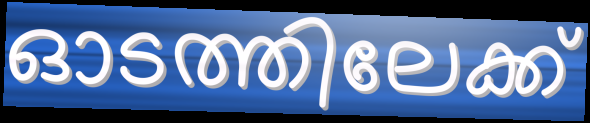
ഓടത്തിലേക്ക്